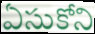
ఏసుకోని